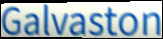
Galvaston